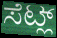
ಸೆಟ್ಲ್